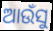
ଆଉଁସୁ